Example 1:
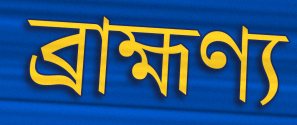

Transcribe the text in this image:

ব্ৰাহ্মণ্য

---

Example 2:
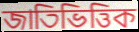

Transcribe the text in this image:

জাতিভিত্তিক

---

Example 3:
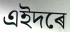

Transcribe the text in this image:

এইদৰে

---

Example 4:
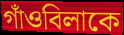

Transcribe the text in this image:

গাঁওবিলাকে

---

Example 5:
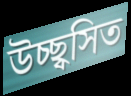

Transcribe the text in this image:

উচ্ছ্বসিত